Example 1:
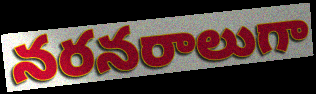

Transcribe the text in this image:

నరనరాలుగా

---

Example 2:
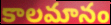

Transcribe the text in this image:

కాలమానం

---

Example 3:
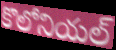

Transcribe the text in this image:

కొలోనియల్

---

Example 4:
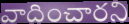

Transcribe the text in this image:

వాదించారని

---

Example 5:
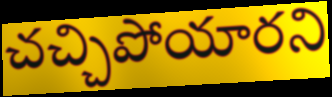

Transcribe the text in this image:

చచ్చిపోయారని